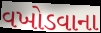
વખોડવાના